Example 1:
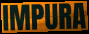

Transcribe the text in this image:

IMPURA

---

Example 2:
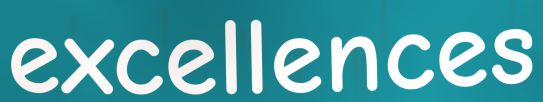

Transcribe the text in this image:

excellences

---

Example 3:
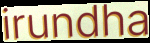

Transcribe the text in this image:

irundha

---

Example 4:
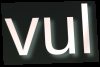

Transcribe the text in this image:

vul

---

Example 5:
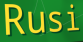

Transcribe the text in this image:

Rusi